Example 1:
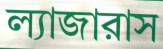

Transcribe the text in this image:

ল্যাজারাস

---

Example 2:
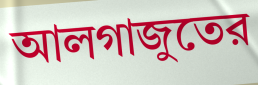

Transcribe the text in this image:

আলগাজুতের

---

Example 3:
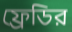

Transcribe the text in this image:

ফ্রেডির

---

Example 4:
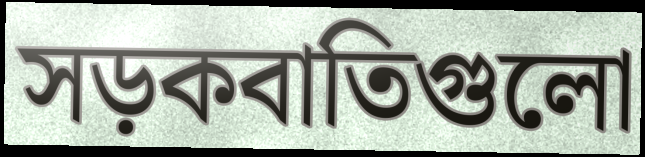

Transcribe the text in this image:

সড়কবাতিগুলো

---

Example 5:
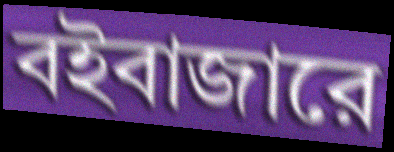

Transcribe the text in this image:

বইবাজারে